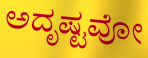
ಅದೃಷ್ಟವೋ